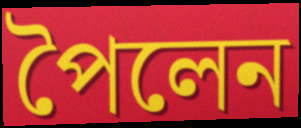
পৈলেন